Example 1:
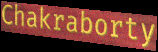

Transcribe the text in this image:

Chakraborty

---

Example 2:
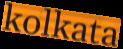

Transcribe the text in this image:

kolkata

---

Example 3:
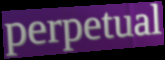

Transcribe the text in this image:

perpetual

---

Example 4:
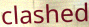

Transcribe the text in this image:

clashed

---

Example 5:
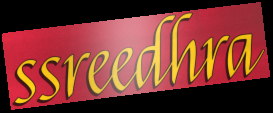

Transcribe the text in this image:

ssreedhra